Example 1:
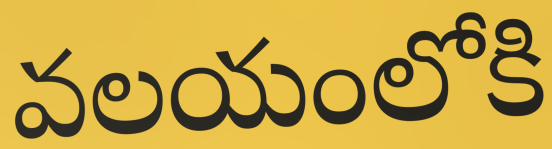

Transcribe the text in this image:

వలయంలోకి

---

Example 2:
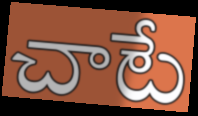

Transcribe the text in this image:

చాటే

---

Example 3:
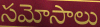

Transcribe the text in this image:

సమోసాలు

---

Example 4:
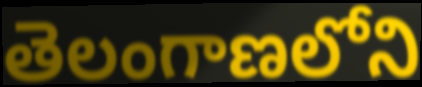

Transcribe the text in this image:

తెలంగాణలోని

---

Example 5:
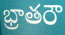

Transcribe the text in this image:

భ్రాతరౌ